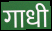
गाधी